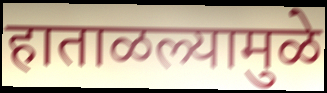
हाताळल्यामुळे